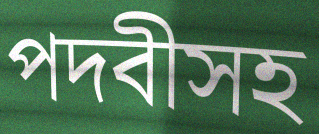
পদবীসহ